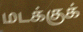
மடக்குக்